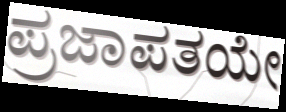
ಪ್ರಜಾಪತಯೇ